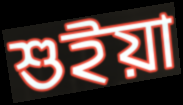
শুইয়া